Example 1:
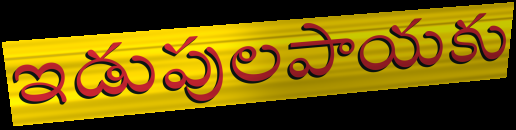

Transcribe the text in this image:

ఇడుపులపాయకు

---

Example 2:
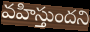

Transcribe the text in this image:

వహిస్తుందని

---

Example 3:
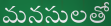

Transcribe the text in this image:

మనసులతో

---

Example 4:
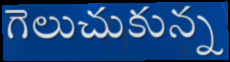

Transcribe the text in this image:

గెలుచుకున్న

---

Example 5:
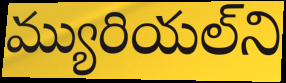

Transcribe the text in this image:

మ్యురియల్‌ని